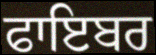
ਫਾਇਬਰ